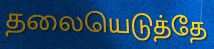
தலையெடுத்தே